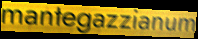
mantegazzianum